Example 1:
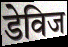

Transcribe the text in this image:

डेविज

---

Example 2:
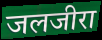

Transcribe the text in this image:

जलजीरा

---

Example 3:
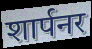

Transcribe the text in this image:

शार्पनर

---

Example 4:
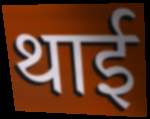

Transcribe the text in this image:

थाई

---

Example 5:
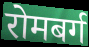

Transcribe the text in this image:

रोमबर्ग